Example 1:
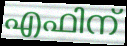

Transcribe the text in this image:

എഫിന്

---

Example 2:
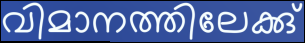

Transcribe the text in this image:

വിമാനത്തിലേക്കു്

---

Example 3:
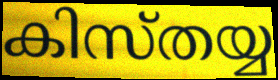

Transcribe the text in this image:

കിസ്തയ്യ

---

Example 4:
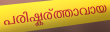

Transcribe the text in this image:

പരിഷ്കര്ത്താവായ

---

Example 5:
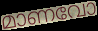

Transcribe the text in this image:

മാണവോ